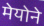
मेयोने